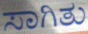
ಸಾಗಿತು